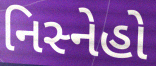
નિસ્નેહો